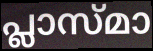
പ്ലാസ്മാ